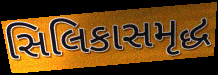
સિલિકાસમૃદ્ધ